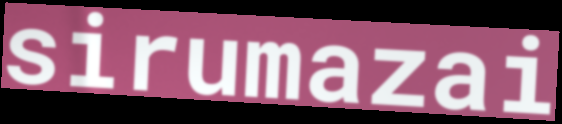
sirumazai